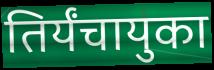
तिर्यंचायुका